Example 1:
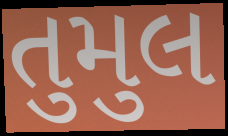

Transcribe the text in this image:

તુમુલ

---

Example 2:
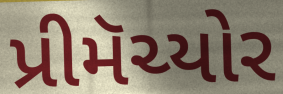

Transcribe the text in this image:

પ્રીમૅચ્યોર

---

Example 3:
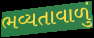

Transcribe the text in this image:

ભવ્યતાવાળું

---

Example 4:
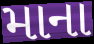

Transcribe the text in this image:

માના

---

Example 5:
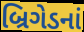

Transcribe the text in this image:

બ્રિગેડનાં